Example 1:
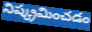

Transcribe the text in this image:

నిష్క్రమించడం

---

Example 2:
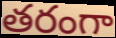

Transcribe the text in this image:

తరంగా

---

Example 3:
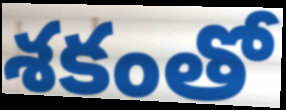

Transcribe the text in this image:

శకంతో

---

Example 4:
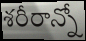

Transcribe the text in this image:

శరీరాన్నో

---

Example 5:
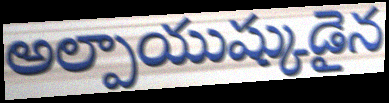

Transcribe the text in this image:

అల్పాయుష్కుడైన